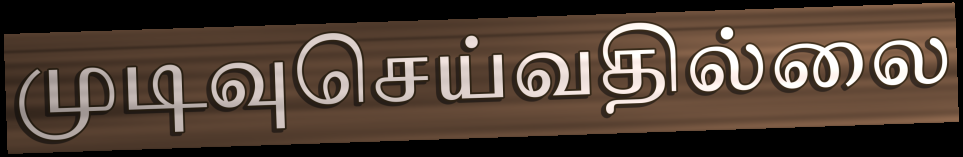
முடிவுசெய்வதில்லை